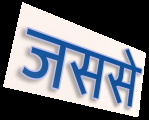
जससे